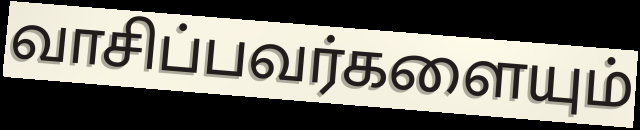
வாசிப்பவர்களையும்